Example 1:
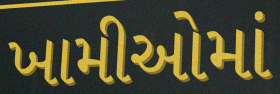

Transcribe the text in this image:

ખામીઓમાં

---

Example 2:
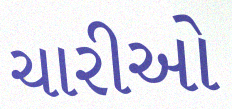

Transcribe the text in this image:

ચારીઓ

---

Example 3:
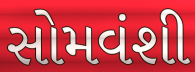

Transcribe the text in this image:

સોમવંશી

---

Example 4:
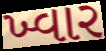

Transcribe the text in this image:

ખ્વાર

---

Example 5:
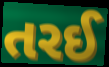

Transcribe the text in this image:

તરઈ